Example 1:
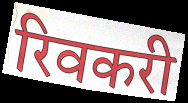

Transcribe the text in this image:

रिवकरी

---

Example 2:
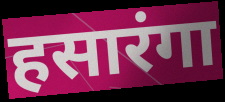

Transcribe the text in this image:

हसारंगा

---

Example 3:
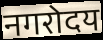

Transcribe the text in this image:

नगरोदय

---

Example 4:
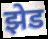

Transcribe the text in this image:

झेड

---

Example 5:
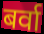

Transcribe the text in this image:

बर्वा